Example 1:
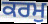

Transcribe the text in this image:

ਕਰਮੁ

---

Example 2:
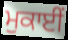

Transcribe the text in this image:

ਮੁਕਾਈਂ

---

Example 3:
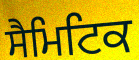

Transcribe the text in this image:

ਸੈਮਿਟਿਕ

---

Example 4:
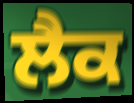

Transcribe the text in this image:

ਲੈਕ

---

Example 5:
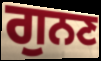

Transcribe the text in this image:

ਗੁਨਣ